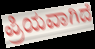
ಪ್ರಿಯವಾಗಿದೆ